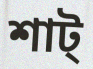
শাট্